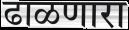
ढाळणारा